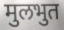
मुलभुत